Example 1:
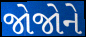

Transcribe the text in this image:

જોજોને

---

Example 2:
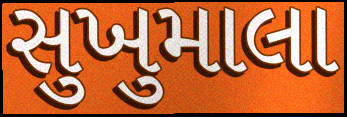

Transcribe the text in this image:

સુખુમાલા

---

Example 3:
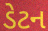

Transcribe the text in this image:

ડેટન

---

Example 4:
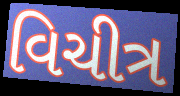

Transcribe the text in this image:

વિચીત્ર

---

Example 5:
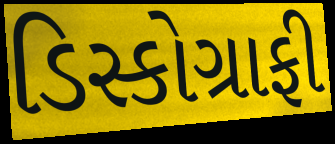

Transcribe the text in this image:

ડિસ્કોગ્રાફી